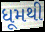
ધૂમથી